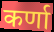
कर्णा